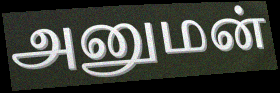
அனுமன்